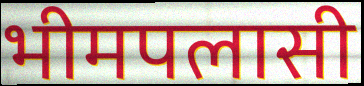
भीमपलासी